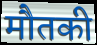
मौतकी